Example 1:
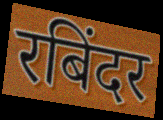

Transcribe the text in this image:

रबिंदर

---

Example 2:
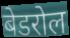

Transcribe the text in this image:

बेडरोल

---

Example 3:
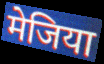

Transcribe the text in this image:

मेजिया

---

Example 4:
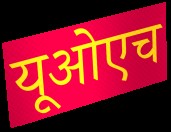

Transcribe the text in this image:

यूओएच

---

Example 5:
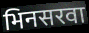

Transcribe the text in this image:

भिनसरवा